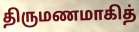
திருமணமாகித்